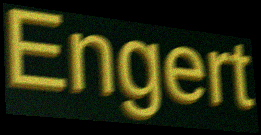
Engert